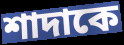
শাদাকে